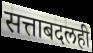
सत्ताबदलही